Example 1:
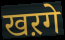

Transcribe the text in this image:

खऱगे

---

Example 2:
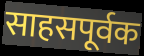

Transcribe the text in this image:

साहसपूर्वक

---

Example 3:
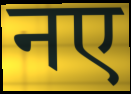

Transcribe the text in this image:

नए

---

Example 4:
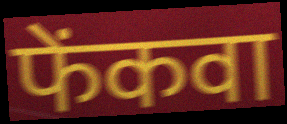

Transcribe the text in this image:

फेंकवा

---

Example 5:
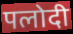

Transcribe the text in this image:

पलोदी